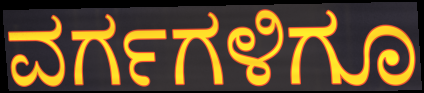
ವರ್ಗಗಳಿಗೂ